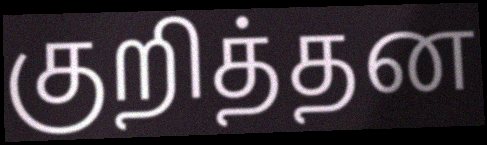
குறித்தன